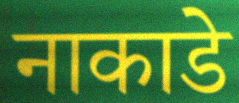
नाकाडे